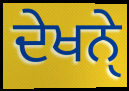
ਦੇਖਨੑੇ